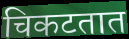
चिकटतात